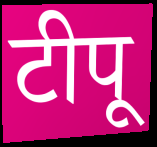
टीपू